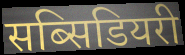
सब्सिडियरी